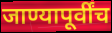
जाण्यापूर्वींच